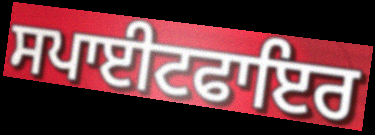
ਸਪਾਈਟਫਾਇਰ